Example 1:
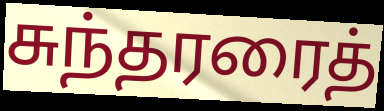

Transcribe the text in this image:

சுந்தரரைத்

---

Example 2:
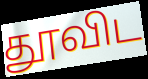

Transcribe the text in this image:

தூவிட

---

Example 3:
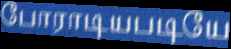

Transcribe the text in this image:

போராடியபடியே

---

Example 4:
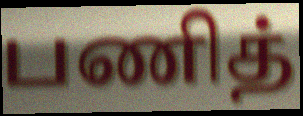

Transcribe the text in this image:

பணித்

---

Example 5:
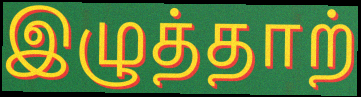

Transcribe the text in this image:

இழுத்தாற்